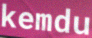
kemdu